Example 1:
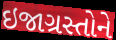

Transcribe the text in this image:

ઇજાગ્રસ્તોને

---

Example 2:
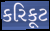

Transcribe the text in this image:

કરિકૂટ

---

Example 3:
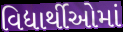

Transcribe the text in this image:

વિદ્યાર્થીઓમાં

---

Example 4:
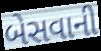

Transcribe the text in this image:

બેસવાની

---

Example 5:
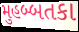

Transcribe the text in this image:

મુહબ્બતકા